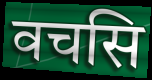
वचसि